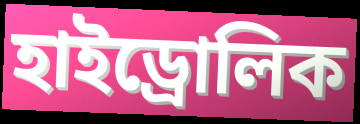
হাইড্রোলিক